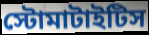
স্টোমাটাইটিস